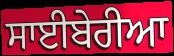
ਸਾਈਬੇਰੀਆ